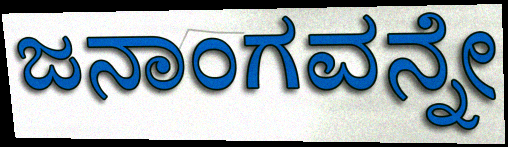
ಜನಾಂಗವನ್ನೇ